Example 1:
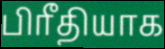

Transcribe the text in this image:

பிரீதியாக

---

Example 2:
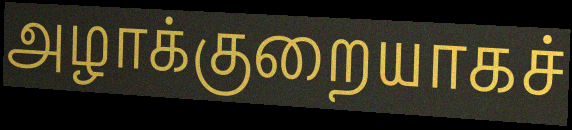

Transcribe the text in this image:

அழாக்குறையாகச்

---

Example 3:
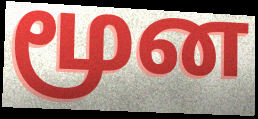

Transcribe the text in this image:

மூன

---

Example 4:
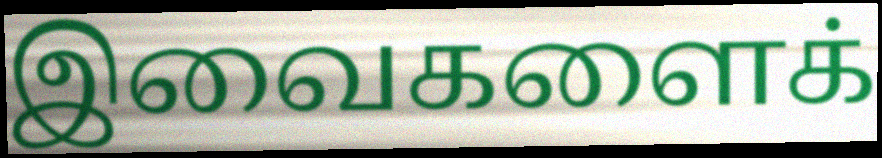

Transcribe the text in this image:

இவைகளைக்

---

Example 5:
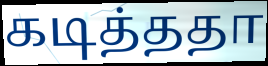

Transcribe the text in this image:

கடித்ததா